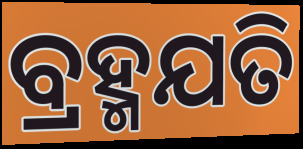
ବ୍ରହ୍ମଯତି